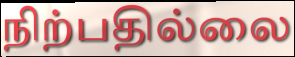
நிற்பதில்லை